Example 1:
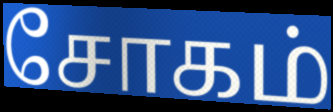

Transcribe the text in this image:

சோகம்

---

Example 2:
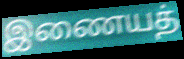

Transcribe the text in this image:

இணையத்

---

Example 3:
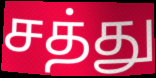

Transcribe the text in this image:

சத்து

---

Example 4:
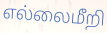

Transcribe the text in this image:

எல்லைமீறி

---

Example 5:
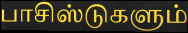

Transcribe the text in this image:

பாசிஸ்டுகளும்